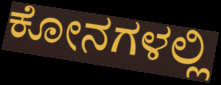
ಕೋನಗಳಲ್ಲಿ